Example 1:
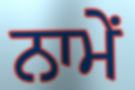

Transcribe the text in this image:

ਨਾਮੇਂ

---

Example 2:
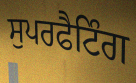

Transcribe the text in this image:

ਸੁਪਰਫੈਟਿੰਗ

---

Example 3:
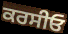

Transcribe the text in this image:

ਕਰਸੀਓ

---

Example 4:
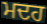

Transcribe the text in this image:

ਮਦਹ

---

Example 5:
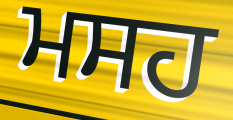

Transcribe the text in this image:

ਮਸਹ